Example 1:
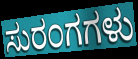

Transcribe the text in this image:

ಸುರಂಗಗಳು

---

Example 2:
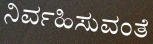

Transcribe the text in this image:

ನಿರ್ವಹಿಸುವಂತೆ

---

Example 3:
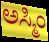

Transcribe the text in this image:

ಅಸ್ಮಿಂ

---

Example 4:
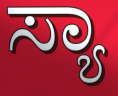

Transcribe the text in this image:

ಸ್ಯಾ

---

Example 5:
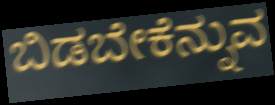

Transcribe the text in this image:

ಬಿಡಬೇಕೆನ್ನುವ